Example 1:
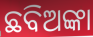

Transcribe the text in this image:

ଛବିଅଙ୍କା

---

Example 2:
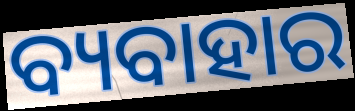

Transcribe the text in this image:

ବ୍ୟବାହାର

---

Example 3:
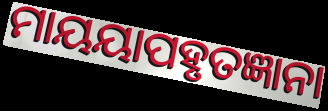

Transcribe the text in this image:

ମାୟୟାପହୃତଜ୍ଞାନା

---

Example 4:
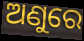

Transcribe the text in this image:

ଅଣୁରେ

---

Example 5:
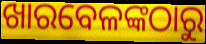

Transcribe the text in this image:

ଖାରବେଳଙ୍କଠାରୁ